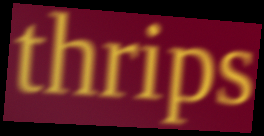
thrips